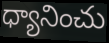
ధ్యానించు